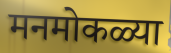
मनमोकळ्या